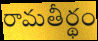
రామతీర్థం